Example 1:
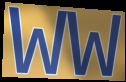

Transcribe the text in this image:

WW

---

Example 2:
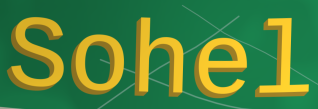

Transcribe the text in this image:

Sohel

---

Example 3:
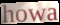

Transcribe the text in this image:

howa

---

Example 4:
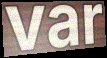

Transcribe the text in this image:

var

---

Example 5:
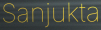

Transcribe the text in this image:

Sanjukta